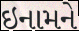
ઇનામને